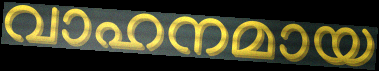
വാഹനമായ